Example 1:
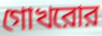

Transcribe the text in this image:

গোখরোর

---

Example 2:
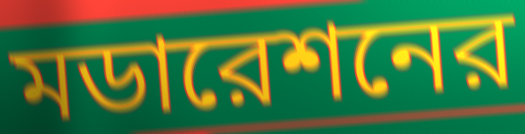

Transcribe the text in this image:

মডারেশনের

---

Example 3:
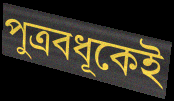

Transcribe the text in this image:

পুত্রবধূকেই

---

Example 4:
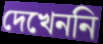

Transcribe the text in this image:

দেখেননি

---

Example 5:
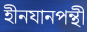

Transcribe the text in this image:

হীনযানপন্থী